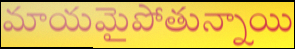
మాయమైపోతున్నాయి